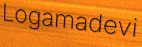
Logamadevi